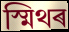
স্মিথৰ